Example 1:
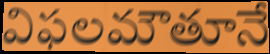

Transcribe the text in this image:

విఫలమౌతూనే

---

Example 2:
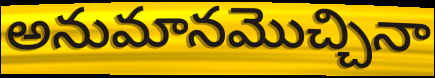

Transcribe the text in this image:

అనుమానమొచ్చినా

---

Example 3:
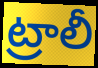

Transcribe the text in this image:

ట్రాలీ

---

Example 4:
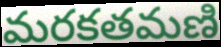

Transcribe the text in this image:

మరకతమణి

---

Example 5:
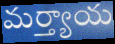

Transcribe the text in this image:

మర్త్యాయ